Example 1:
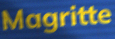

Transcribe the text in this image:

Magritte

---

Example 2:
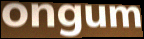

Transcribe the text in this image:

ongum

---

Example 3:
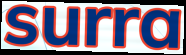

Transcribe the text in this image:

surra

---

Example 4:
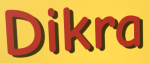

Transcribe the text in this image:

Dikra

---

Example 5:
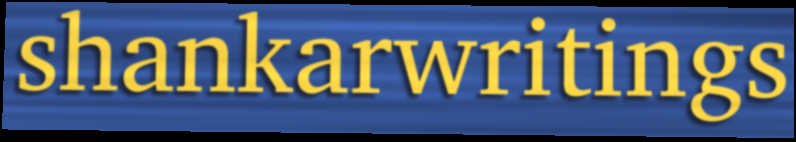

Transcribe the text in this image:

shankarwritings